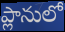
ప్లానులో